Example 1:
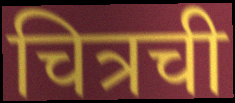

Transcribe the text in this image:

चित्रची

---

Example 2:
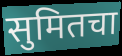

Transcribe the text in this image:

सुमितचा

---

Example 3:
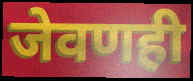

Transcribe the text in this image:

जेवणही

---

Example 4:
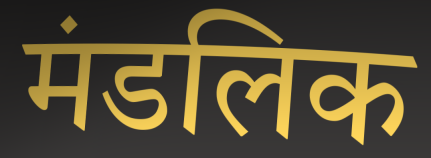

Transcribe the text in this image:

मंडलिक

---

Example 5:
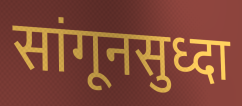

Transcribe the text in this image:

सांगूनसुध्दा